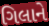
ગિલાને